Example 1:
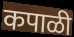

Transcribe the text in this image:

कपाळी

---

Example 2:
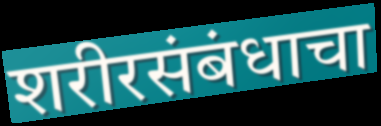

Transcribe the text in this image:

शरीरसंबंधाचा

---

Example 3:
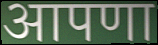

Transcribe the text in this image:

आपणा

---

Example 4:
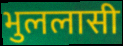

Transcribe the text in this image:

भुललासी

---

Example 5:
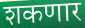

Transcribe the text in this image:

शकणार